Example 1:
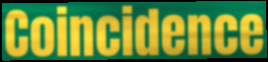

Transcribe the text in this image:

Coincidence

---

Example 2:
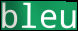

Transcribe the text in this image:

bleu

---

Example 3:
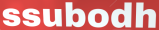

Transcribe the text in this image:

ssubodh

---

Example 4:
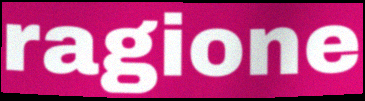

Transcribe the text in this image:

ragione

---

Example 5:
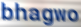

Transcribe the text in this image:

bhagwo